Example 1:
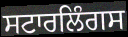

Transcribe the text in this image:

ਸਟਾਰਲਿੰਗਸ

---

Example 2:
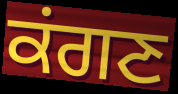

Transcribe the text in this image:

ਕਂਗਣ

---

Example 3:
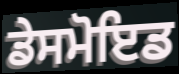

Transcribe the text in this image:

ਡੇਸਮੋਇਡ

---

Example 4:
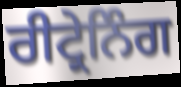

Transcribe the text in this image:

ਰੀਟ੍ਰੇਨਿੰਗ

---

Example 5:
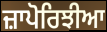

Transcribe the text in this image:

ਜ਼ਾਪੋਰਿਝੀਆ